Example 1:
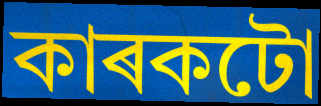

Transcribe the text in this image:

কাৰকটো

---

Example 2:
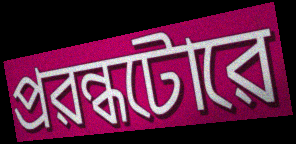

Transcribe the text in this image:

প্ৰৱন্ধটোৱে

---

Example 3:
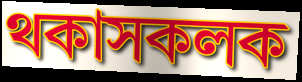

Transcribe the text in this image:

থকাসকলক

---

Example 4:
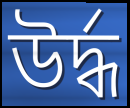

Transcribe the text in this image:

উৰ্দ্ধ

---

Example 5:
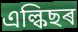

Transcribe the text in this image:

এল্কিছৰ